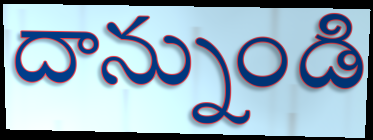
దాన్నుండి